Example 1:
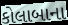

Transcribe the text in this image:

કોલાબાના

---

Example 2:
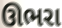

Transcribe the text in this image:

ઊભરા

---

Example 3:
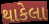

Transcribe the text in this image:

થાકેલા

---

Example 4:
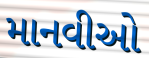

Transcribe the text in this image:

માનવીઓ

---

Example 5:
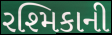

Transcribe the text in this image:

રશ્મિકાની